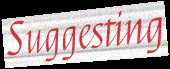
Suggesting